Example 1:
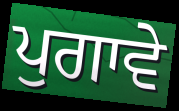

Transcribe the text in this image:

ਪੁਗਾਵੇ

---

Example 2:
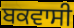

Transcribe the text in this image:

ਬਕਵਾਸੀ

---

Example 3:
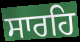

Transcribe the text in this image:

ਸਾਰਹਿ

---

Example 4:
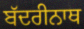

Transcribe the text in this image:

ਬੱਦਰੀਨਾਥ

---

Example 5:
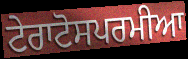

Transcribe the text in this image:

ਟੇਰਾਟੋਸਪਰਮੀਆ